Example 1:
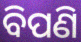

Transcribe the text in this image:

ବିପଣି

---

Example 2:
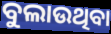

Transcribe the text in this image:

ବୁଲାଉଥିବା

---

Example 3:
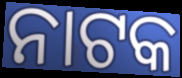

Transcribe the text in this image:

ନାଟକ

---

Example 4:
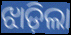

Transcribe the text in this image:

ଝାଡ଼ିଲା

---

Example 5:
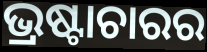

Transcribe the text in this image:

ଭ୍ରଷ୍ଟାଚାରର